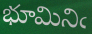
భూమినిఁ